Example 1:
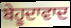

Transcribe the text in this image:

ਬੇਹੂਦਾਵਾਦ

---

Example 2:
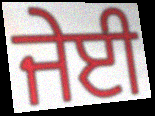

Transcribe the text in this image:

ਜੇਈ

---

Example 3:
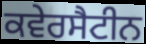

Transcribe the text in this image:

ਕਵੇਰਸੈਟੀਨ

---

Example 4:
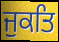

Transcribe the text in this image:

ਜੁਕਤਿ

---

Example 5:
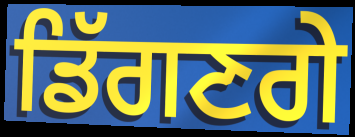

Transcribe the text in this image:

ਡਿੱਗਣਗੇ